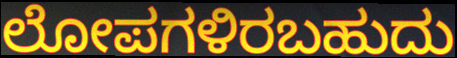
ಲೋಪಗಳಿರಬಹುದು